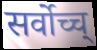
सर्वोच्च्